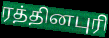
ரத்தினபுரி